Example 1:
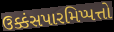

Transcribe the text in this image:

ઉક્કંસપારમિપ્પત્તો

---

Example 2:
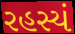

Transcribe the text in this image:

રહસ્યં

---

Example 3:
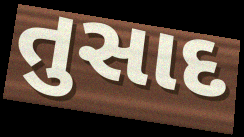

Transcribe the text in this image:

તુસાદ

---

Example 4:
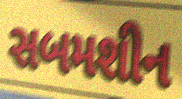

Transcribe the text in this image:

સબમશીન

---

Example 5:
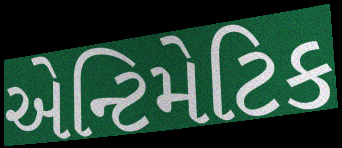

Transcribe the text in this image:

એન્ટિમેટિક